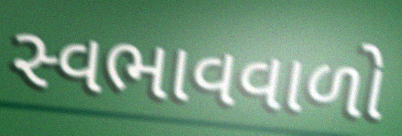
સ્વભાવવાળો